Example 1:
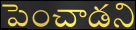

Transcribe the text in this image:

పెంచాడని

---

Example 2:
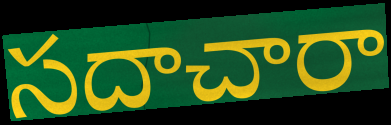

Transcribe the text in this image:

సదాచారా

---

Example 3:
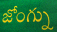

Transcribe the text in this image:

జోంగ్ను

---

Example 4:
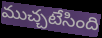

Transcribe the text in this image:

ముచ్చటేసింది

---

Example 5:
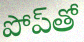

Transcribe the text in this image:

పోప్‌తో